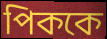
পিককে